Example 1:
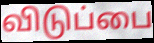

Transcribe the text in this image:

விடுப்பை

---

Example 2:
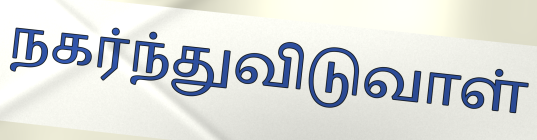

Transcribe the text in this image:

நகர்ந்துவிடுவாள்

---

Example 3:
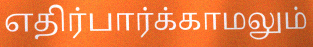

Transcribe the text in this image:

எதிர்பார்க்காமலும்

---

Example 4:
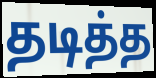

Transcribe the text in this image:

தடித்த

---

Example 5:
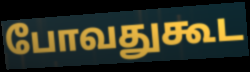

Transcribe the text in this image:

போவதுகூட